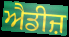
ਐਡੀਜ਼